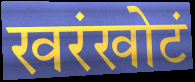
खरंखोटं